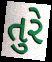
તુરે